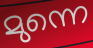
മുന്നെ